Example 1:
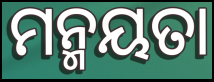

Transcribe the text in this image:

ମନ୍ମୟତା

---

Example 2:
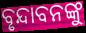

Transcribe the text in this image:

ବୃନ୍ଦାବନଙ୍କୁ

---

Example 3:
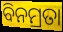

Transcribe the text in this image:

ବିନମ୍ରତା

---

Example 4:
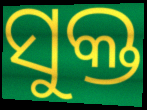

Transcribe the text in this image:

ସୁକ୍ତ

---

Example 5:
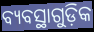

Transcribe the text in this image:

ବ୍ୟବସ୍ଥାଗୁଡ଼ିକ